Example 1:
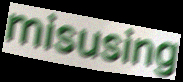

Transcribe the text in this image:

misusing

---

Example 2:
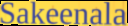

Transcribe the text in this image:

Sakeenala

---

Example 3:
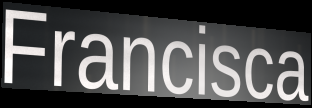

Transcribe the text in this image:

Francisca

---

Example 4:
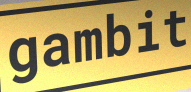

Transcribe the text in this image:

gambit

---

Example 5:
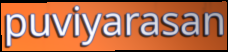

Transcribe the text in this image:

puviyarasan